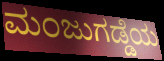
ಮಂಜುಗಡ್ಡೆಯ